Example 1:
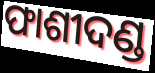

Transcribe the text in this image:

ଫାଶୀଦଣ୍ଡ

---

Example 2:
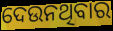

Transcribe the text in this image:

ଦେଉନଥିବାର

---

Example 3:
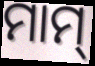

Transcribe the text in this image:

ମାମ୍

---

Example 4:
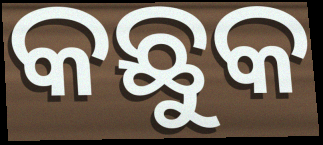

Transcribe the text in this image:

କଛୁକ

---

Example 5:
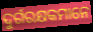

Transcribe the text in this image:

ଦୁର୍ଗରକ୍ଷକମାନେ